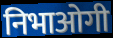
निभाओगी